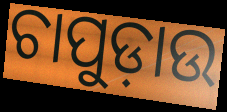
ଚାପୁଡ଼ାଉ